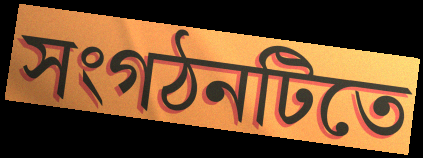
সংগঠনটিতে